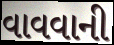
વાવવાની